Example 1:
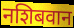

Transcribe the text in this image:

नशिबवान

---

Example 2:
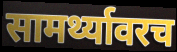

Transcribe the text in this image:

सामर्थ्यावरच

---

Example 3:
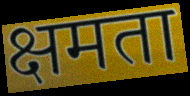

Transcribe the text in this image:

क्षमता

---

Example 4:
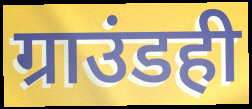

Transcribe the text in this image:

ग्राउंडही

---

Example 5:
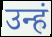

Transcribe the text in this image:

उन्हं